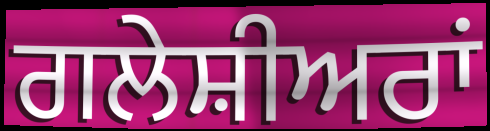
ਗਲੇਸ਼ੀਅਰਾਂ